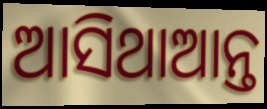
ଆସିଥାଆନ୍ତ